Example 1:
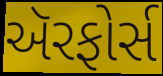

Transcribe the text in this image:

ઍરફોર્સ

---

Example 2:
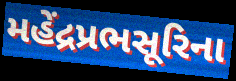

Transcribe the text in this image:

મહેંદ્રપ્રભસૂરિના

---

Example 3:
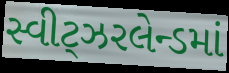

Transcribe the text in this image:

સ્વીટ્ઝરલેન્ડમાં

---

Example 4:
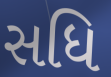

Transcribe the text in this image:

સધિ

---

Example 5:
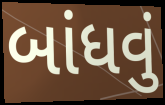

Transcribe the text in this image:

બાંધવું